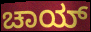
ಚಾಯ್